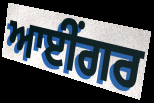
ਆਈਂਗਰ